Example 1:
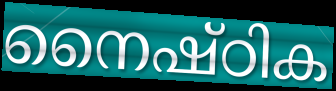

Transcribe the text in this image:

നൈഷ്ഠിക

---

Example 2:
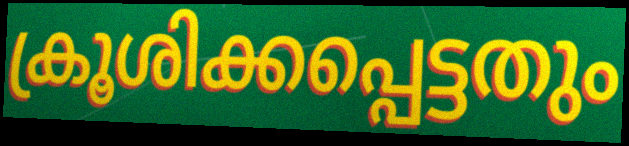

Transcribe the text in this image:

ക്രൂശിക്കപ്പെട്ടതും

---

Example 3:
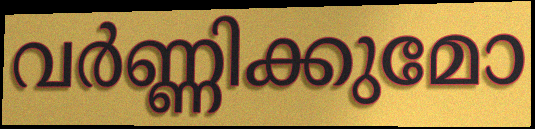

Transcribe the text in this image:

വർണ്ണിക്കുമോ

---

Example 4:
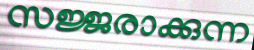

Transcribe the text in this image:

സജ്ജരാക്കുന്ന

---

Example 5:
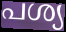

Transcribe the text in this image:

പശ്യ